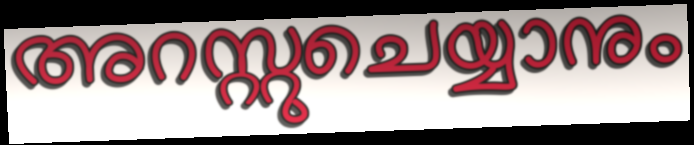
അറസ്റ്റുചെയ്യാനും